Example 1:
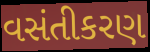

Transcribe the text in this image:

વસંતીકરણ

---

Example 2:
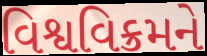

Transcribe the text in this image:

વિશ્વવિક્રમને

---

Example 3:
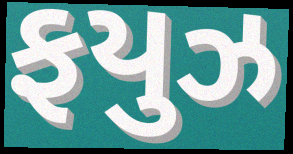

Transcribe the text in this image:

ફયુઝ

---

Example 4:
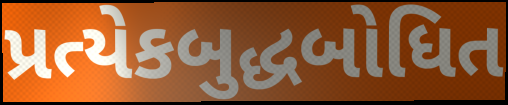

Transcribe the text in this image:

પ્રત્યેકબુદ્ધબોધિત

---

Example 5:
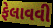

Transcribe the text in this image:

ફેલાવવી